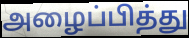
அழைப்பித்து